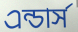
এন্ডার্স